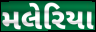
મલેરિયા